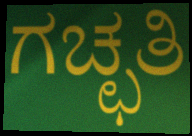
ಗಚ್ಛತಿ